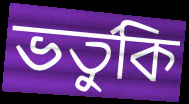
ভর্তুকি